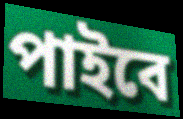
পাইবে